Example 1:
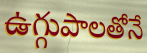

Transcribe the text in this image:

ఉగ్గుపాలతోనే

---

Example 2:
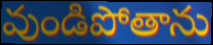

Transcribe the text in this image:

వుండిపోతాను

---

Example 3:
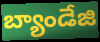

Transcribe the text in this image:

బ్యాండేజి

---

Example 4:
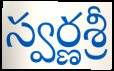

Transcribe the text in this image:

స్వర్ణశ్రీ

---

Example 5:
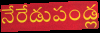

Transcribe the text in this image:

నేరేడుపండ్ల